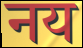
नय